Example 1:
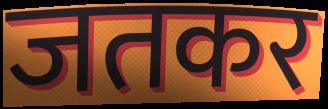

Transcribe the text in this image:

जतकर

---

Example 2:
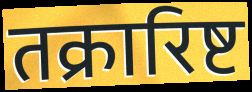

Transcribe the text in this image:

तक्रारिष्ट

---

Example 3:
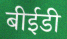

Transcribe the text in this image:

बीईडी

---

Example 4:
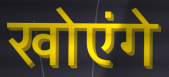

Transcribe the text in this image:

खोएंगे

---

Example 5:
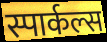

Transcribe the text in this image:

स्पार्कल्स